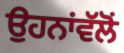
ਉਹਨਾਂਵੱਲੋਂ